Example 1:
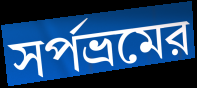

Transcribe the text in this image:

সর্পভ্রমের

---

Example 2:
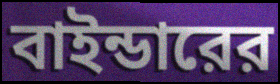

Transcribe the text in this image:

বাইন্ডারের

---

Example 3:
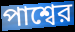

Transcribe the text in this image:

পাশ্বের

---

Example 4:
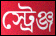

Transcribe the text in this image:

স্ট্রেঞ্জ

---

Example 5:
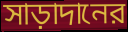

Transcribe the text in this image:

সাড়াদানের